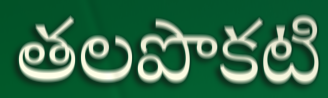
తలపొకటి